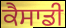
ਕੈਸਾਡੀ